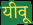
यीवू